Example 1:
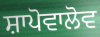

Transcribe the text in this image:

ਸ਼ਾਪੋਵਾਲੋਵ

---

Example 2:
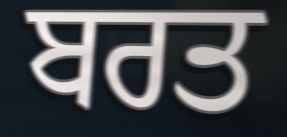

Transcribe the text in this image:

ਬਰਤ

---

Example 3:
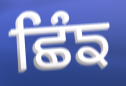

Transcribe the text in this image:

ਛਿੰਙ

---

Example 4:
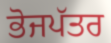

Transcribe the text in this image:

ਭੋਜਪੱਤਰ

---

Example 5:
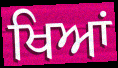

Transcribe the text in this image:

ਖਿਆਂ